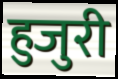
हुजुरी